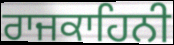
ਰਾਜਕਾਹਿਨੀ